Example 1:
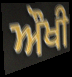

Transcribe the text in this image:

ਔਖੀ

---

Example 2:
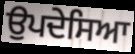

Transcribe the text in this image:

ਉਪਦੇਸਿਆ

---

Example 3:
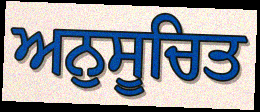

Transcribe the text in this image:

ਅਨੁਸੂਚਿਤ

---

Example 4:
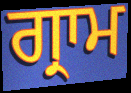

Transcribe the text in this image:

ਗ੍ਰਾਮ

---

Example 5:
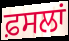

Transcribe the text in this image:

ਫ਼ਸਲਾਂ